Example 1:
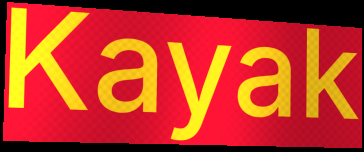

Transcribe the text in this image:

Kayak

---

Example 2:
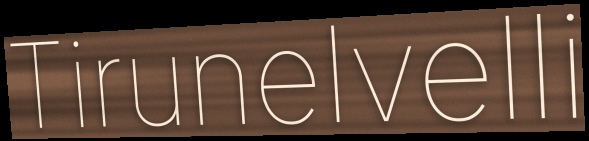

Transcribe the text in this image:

Tirunelvelli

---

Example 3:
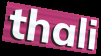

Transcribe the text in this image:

thali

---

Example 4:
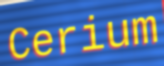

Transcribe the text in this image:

Cerium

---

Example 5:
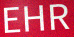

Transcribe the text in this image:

EHR